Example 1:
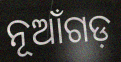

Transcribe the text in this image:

ନୂଆଁଗଡ଼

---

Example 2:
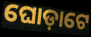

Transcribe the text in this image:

ଘୋଡ଼ାଟେ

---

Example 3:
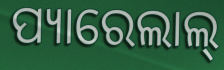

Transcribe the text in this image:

ପ୍ୟାରେଲାଲ୍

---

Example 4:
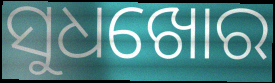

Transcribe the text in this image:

ସୁଧଖୋର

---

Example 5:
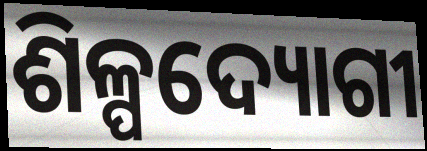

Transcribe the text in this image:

ଶିଳ୍ପଦ୍ୟୋଗୀ